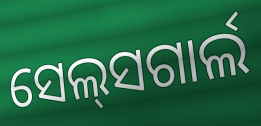
ସେଲ୍‍ସଗାର୍ଲ